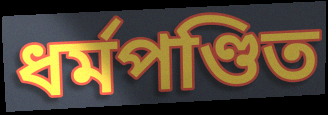
ধর্মপণ্ডিত